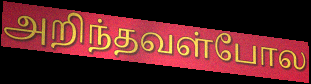
அறிந்தவள்போல